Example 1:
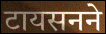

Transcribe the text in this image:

टायसनने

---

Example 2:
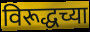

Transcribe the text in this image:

विरूद्धच्या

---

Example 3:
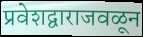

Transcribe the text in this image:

प्रवेशद्वाराजवळून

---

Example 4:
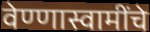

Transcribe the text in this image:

वेण्णास्वामींचे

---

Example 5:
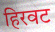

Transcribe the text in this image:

हिरवट